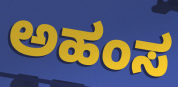
ಅಹಂಸ